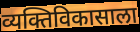
व्यक्तिविकासाला